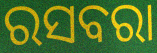
ରସବରା